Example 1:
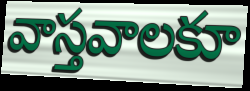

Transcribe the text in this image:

వాస్తవాలకూ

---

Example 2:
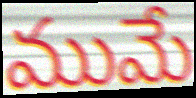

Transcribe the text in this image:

ముమే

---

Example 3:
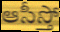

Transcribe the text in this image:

ఆసీస్తో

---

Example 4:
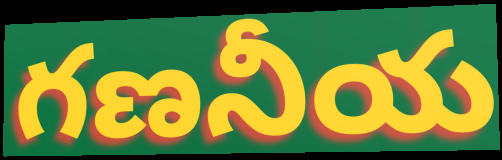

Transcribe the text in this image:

గణనీయ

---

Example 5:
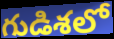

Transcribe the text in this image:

గుడిశలో